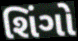
શિંગો